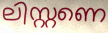
ലിസ്റ്റണെ